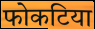
फोकटिया